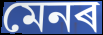
মেনৰ